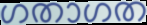
ഗതാഗത